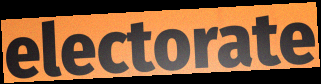
electorate